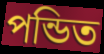
পন্ডিত